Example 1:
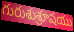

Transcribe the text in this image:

గురుశుశ్రూషయు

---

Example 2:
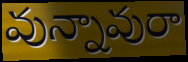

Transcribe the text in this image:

వున్నావురా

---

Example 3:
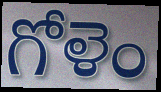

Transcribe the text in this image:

గోళెం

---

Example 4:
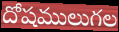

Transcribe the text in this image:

దోషములుగల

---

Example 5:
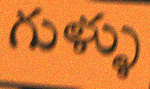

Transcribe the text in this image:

గుళ్ళు